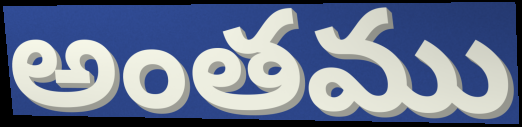
అంతము